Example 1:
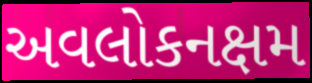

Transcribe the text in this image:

અવલોકનક્ષમ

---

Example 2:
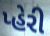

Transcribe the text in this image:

પ્હેરી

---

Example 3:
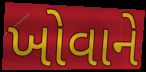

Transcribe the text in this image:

ખોવાને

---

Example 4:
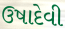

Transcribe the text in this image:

ઉષાદેવી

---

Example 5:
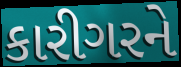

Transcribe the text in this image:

કારીગરને